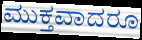
ಮುಕ್ತವಾದರೂ